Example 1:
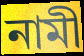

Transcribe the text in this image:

নামী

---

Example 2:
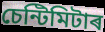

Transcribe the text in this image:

চেন্টিমিটাৰ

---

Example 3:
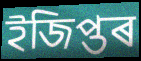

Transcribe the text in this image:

ইজিপ্তৰ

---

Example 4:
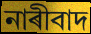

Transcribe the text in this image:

নাৰীবাদ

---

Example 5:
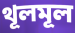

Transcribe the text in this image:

থূলমূল